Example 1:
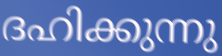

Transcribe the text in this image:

ദഹിക്കുന്നു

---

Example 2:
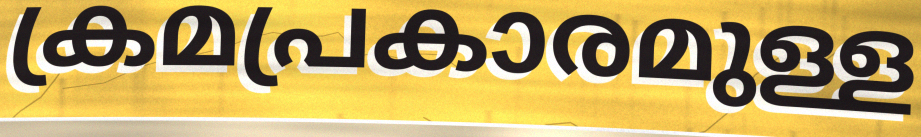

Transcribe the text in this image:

ക്രമപ്രകാരമുള്ള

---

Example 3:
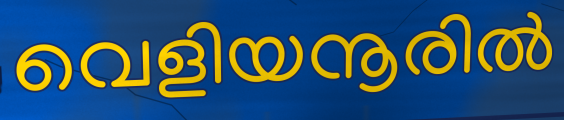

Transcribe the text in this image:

വെളിയനൂരിൽ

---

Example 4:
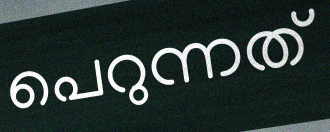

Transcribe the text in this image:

പെറുന്നത്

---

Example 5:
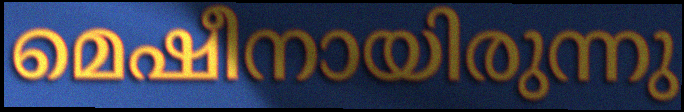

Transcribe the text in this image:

മെഷീനായിരുന്നു